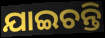
ଯାଇଚନ୍ତି